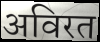
अविरत